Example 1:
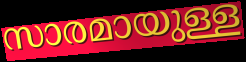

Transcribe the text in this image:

സാരമായുള്ള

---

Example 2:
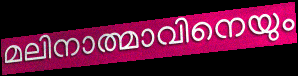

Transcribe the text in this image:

മലിനാത്മാവിനെയും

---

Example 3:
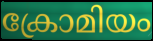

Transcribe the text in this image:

ക്രോമിയം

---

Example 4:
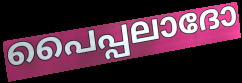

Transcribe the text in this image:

പൈപ്പലാദോ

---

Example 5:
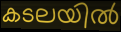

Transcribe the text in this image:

കടലയിൽ